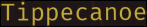
Tippecanoe